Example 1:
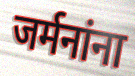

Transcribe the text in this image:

जर्मनांना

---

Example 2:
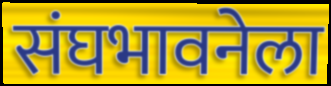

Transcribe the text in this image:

संघभावनेला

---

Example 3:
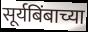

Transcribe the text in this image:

सूर्यबिंबाच्या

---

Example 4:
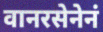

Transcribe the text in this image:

वानरसेनेनं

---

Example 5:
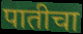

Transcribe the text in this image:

पातीचा